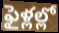
ఫైళ్లల్లో